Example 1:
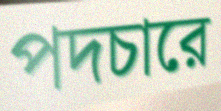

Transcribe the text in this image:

পদচারে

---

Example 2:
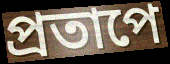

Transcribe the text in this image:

প্রতাপে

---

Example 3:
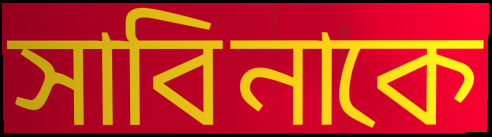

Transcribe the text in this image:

সাবিনাকে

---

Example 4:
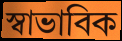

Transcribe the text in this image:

স্বাভাবিক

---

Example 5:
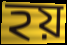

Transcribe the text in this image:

হয়